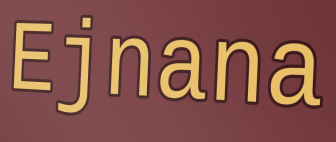
Ejnana